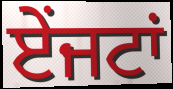
ਏਂਜਟਾਂ